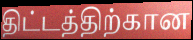
திட்டத்திற்கான